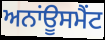
ਅਨਾਂਊਸਮੈਂਟ